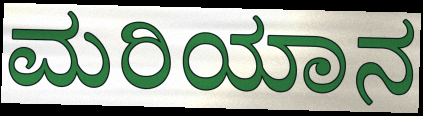
ಮರಿಯಾನ